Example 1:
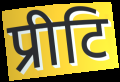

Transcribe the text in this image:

प्रीटि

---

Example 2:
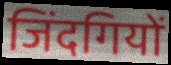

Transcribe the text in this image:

जिंदगियों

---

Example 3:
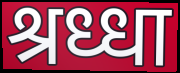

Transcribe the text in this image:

श्रध्धा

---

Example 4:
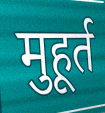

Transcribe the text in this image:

मुहूर्त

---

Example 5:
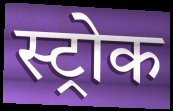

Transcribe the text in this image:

स्‍ट्रोक